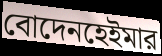
বোদেনহেইমার